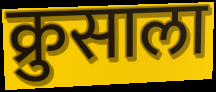
क्रुसाला